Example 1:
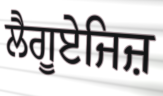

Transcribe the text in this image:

ਲੈਗੂਏਜਿਜ਼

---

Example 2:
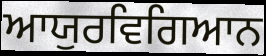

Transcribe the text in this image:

ਆਯੁਰਵਿਗਿਆਨ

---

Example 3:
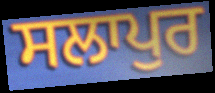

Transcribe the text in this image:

ਸਲਾਪੁਰ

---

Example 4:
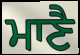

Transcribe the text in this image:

ਮਾਣੈ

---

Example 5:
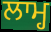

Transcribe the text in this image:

ਲਾਮ੍ਹ